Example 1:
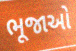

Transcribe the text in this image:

ભૂજાઓ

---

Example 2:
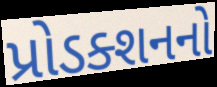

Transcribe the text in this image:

પ્રોડક્શનનો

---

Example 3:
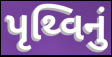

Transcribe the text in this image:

પૃથ્વિનું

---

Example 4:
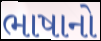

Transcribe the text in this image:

ભાષાનો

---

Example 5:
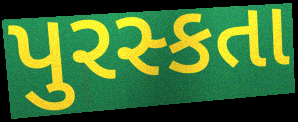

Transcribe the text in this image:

પુરસ્કતા